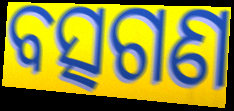
ବତ୍ସଗଣ